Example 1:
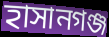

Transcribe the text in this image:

হাসানগঞ্জ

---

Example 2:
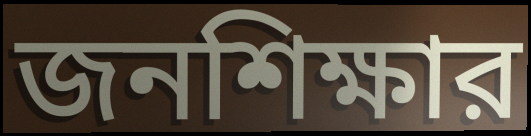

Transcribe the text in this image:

জনশিক্ষার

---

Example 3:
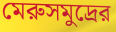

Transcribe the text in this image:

মেরুসমুদ্রের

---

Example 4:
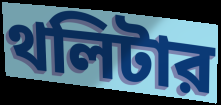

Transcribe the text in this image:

থলিটার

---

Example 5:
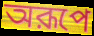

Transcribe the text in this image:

অরূপে